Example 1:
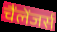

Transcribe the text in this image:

चैंलेंजर्स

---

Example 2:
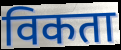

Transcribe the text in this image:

विकता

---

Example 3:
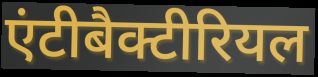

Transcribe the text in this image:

एंटीबैक्टीरियल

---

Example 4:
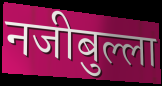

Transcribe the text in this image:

नजीबुल्ला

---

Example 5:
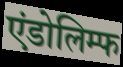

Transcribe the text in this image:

एंडोलिम्फ